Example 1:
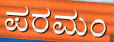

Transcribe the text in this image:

ಪರಮಂ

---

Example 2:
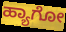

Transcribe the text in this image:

ಹ್ಯಾಗೋ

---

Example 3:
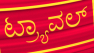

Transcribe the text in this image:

ಟ್ರ್ಯಾವಲ್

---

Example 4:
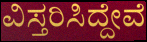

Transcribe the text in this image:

ವಿಸ್ತರಿಸಿದ್ದೇವೆ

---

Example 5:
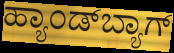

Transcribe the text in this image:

ಹ್ಯಾಂಡ್‌ಬ್ಯಾಗ್